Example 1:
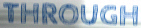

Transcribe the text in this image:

THROUGH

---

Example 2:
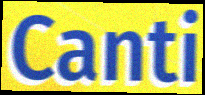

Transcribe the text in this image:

Canti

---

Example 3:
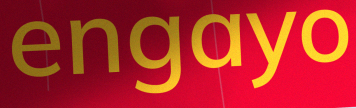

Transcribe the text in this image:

engayo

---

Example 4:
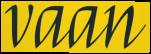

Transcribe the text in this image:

vaan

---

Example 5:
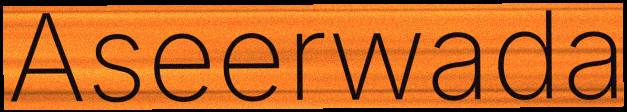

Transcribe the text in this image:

Aseerwada